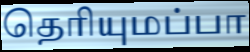
தெரியுமப்பா